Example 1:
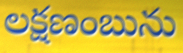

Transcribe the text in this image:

లక్షణంబును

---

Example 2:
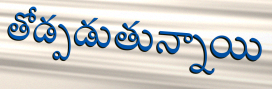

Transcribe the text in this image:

తోడ్పడుతున్నాయి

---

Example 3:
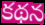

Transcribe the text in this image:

కథన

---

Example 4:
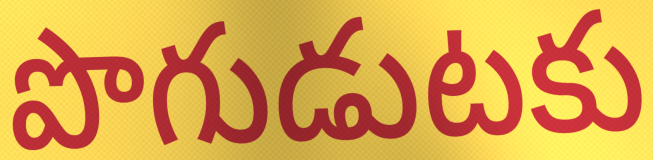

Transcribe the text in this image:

పొగుడుటకు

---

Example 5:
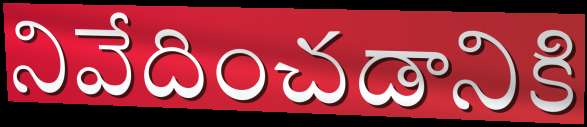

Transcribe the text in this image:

నివేదించడానికి